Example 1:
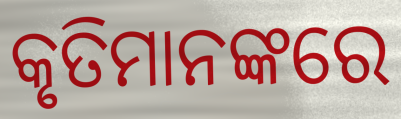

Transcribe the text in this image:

କୃତିମାନଙ୍କରେ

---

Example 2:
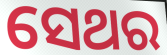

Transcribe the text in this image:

ସେଥର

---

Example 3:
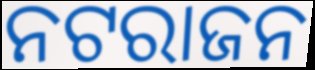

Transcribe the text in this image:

ନଟରାଜନ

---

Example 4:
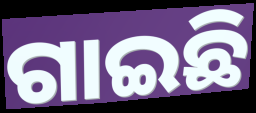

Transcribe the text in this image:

ଗାଇଛି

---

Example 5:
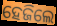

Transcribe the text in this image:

ହେଜିଲେ